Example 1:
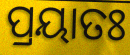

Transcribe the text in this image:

ପ୍ରୟାତଃ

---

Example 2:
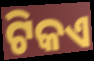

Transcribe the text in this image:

ଟିକଏ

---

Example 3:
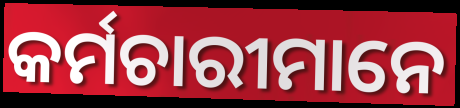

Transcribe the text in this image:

କର୍ମଚାରୀମାନେ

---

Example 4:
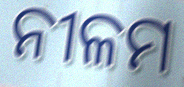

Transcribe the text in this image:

ନୀଳମ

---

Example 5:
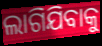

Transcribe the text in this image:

ଲାଗିଯିବାକୁ